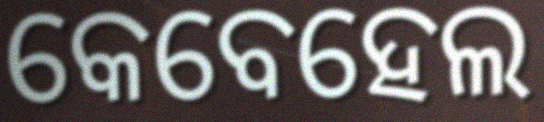
କେବେହେଲ